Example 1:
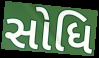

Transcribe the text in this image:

સોધિ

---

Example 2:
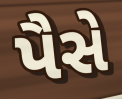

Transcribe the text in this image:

પૈસે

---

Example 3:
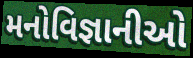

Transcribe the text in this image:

મનોવિજ્ઞાનીઓ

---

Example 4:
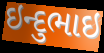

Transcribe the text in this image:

ઇન્દુભાઇ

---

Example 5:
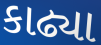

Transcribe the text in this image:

કાઢ્યા